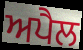
ਅਪੈਲ